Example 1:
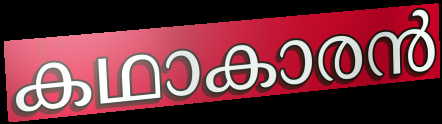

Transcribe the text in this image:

കഥാകാരൻ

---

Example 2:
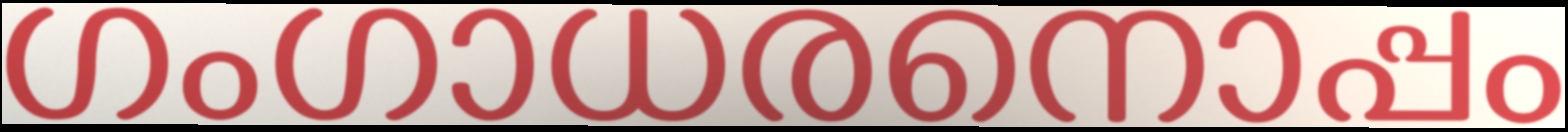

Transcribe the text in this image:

ഗംഗാധരനൊപ്പം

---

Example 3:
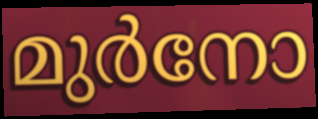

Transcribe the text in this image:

മുർനോ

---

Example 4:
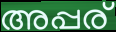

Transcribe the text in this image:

അപ്പര്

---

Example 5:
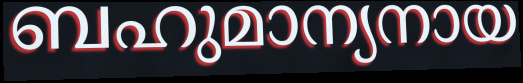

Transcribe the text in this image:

ബഹുമാന്യനായ